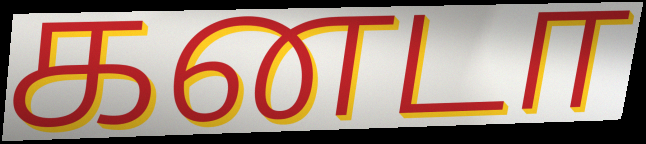
கனடா